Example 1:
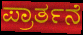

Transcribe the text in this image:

ಪ್ರಾರ್ತನೆ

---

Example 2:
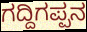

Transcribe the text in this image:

ಗದ್ದಿಗಪ್ಪನ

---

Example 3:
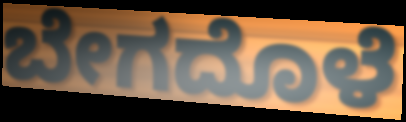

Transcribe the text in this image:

ಬೇಗದೊಳೆ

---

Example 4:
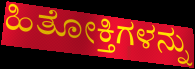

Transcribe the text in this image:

ಹಿತೋಕ್ತಿಗಳನ್ನು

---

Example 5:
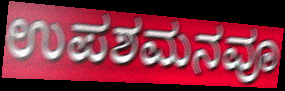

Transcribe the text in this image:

ಉಪಶಮನವೂ